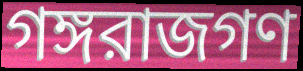
গঙ্গরাজগণ